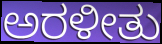
ಅರಳೀತು